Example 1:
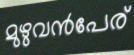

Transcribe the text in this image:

മുഴുവൻപേര്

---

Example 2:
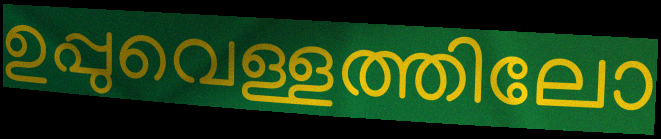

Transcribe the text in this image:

ഉപ്പുവെള്ളത്തിലോ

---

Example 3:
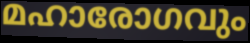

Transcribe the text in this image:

മഹാരോഗവും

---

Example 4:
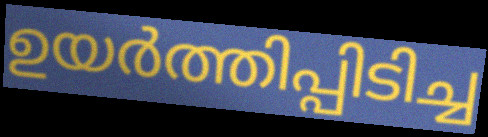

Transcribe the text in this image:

ഉയർത്തിപ്പിടിച്ച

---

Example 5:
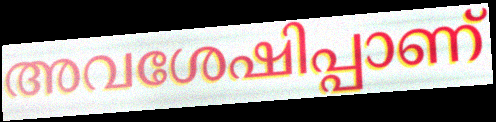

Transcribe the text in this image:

അവശേഷിപ്പാണ്